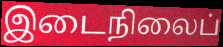
இடைநிலைப்